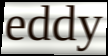
eddy